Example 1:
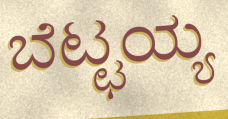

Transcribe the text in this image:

ಬೆಟ್ಟಯ್ಯ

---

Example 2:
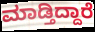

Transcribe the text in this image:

ಮಾಡ್ತಿದ್ದಾರೆ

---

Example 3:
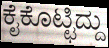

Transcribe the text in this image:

ಕೈಕೊಟ್ಟಿದ್ದು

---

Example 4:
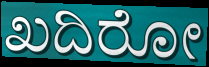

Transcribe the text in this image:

ಖದಿರೋ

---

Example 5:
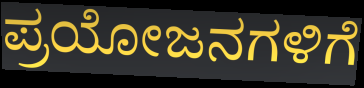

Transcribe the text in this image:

ಪ್ರಯೋಜನಗಳಿಗೆ